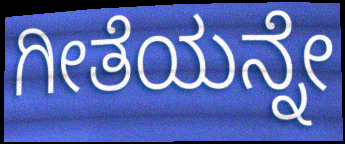
ಗೀತೆಯನ್ನೇ